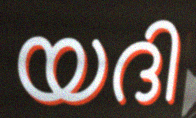
യദി